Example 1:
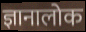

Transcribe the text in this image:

ज्ञानालोक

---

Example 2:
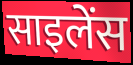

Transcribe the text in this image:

साइलेंस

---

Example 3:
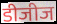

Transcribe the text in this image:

डीजीज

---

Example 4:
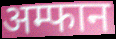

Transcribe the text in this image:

अम्फान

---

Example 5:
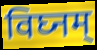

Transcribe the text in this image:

विघ्नम्